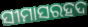
ସୀମାସରହଦ